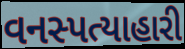
વનસ્પત્યાહારી